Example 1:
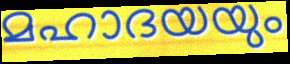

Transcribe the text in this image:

മഹാദയയും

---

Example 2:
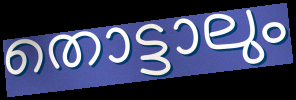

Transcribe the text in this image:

തൊട്ടാലും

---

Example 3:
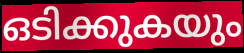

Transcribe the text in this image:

ഒടിക്കുകയും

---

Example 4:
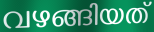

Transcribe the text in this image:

വഴങ്ങിയത്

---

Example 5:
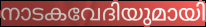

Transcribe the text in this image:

നാടകവേദിയുമായി